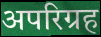
अपरिग्रह